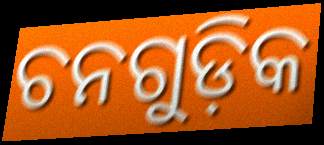
ଚନଗୁଡ଼ିକ